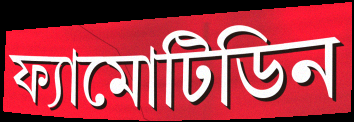
ফ্যামোটিডিন